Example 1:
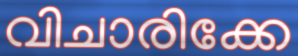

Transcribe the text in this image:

വിചാരിക്കേ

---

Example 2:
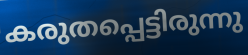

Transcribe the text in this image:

കരുതപ്പെട്ടിരുന്നു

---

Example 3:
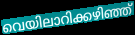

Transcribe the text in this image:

വെയിലാറിക്കഴിഞ്ഞ്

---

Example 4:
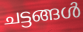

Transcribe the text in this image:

ചട്ടങ്ങൾ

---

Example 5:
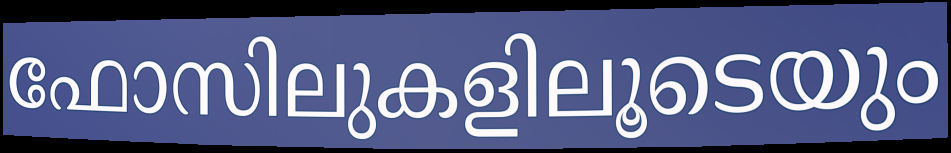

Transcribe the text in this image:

ഫോസിലുകളിലൂടെയും